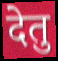
देतु